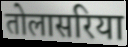
तोलासरिया